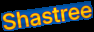
Shastree